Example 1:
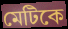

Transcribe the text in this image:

মেটিকে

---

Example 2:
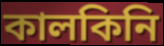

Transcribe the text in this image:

কালকিনি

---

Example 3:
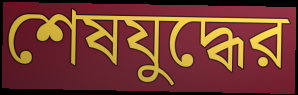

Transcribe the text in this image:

শেষযুদ্ধের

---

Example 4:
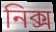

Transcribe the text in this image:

নিক্স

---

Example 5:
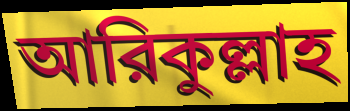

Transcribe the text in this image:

আরিকুল্লাহ